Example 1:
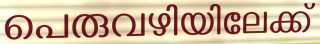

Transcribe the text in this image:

പെരുവഴിയിലേക്ക്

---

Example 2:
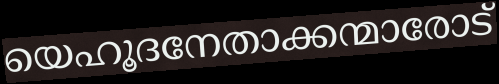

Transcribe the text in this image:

യെഹൂദനേതാക്കന്മാരോട്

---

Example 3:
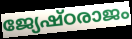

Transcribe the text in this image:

ജ്യേഷ്ഠരാജം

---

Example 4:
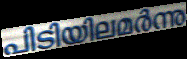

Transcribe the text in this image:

പിടിയിലമർന്നു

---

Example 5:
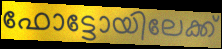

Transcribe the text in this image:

ഫോട്ടോയിലേക്ക്